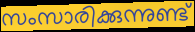
സംസാരിക്കുന്നുണ്ട്